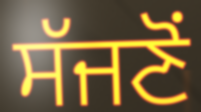
ਸੱਜਣੋਂ